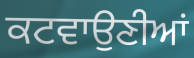
ਕਟਵਾਉਣੀਆਂ